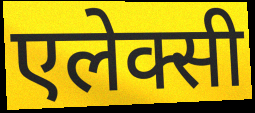
एलेक्सी